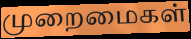
முறைமைகள்